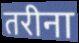
तरीना